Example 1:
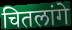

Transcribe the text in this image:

चितलांगे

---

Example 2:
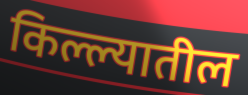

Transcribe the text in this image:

किल्ल्यातील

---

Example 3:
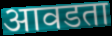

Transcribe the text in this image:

आवडता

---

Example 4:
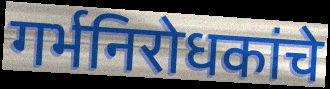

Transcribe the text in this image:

गर्भनिरोधकांचे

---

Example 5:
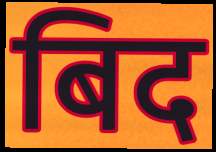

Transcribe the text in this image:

बिद